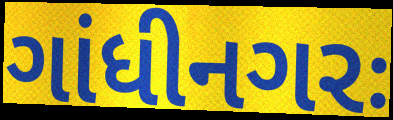
ગાંધીનગરઃ